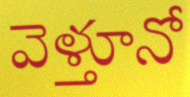
వెళ్తూనో